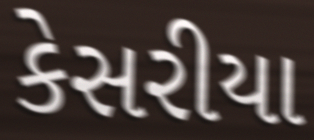
કેસરીયા